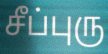
சீப்புரு